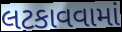
લટકાવવામાં